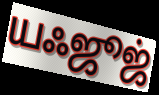
யஃஜூஜ்